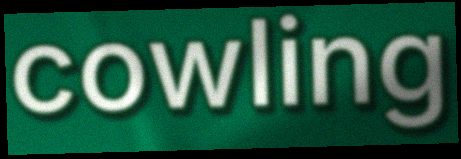
cowling